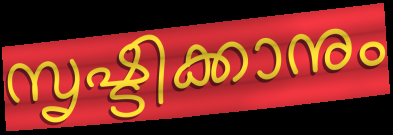
സൃഷ്ടിക്കാനും